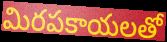
మిరపకాయలతో